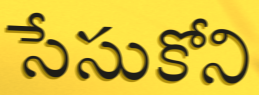
సేసుకోని